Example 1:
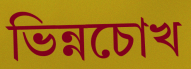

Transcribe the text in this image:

ভিন্নচোখ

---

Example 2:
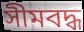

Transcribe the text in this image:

সীমবদ্ধ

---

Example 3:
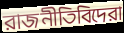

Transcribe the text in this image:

রাজনীতিবিদেরা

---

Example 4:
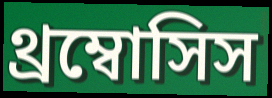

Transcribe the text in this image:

থ্রম্বোসিস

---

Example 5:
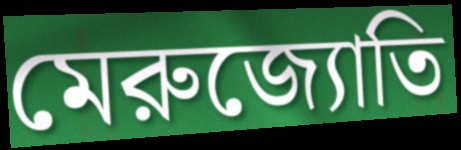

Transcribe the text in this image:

মেরুজ্যোতি